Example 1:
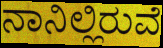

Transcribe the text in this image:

ನಾನಿಲ್ಲಿರುವೆ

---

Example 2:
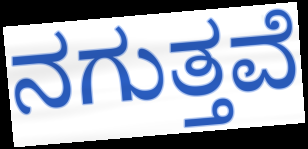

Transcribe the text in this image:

ನಗುತ್ತವೆ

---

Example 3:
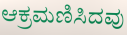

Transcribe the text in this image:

ಆಕ್ರಮಣಿಸಿದವು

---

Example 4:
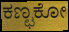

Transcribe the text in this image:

ಕಣ್ಟಕೋ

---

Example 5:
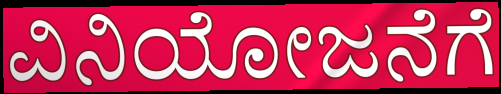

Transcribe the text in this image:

ವಿನಿಯೋಜನೆಗೆ